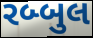
રબ્બુલ